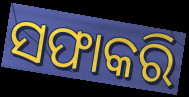
ସଫାକରି